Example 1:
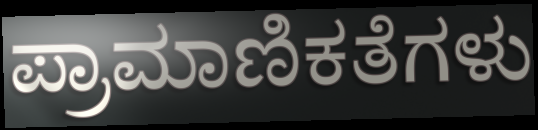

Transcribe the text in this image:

ಪ್ರಾಮಾಣಿಕತೆಗಳು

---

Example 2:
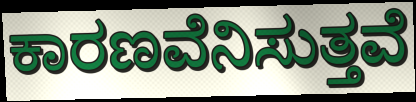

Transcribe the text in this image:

ಕಾರಣವೆನಿಸುತ್ತವೆ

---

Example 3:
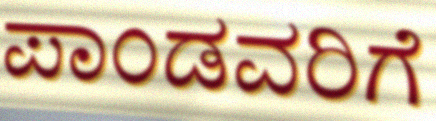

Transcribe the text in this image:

ಪಾಂಡವರಿಗೆ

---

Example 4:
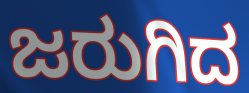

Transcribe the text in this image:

ಜರುಗಿದ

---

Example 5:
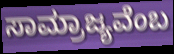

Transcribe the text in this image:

ಸಾಮ್ರಾಜ್ಯವೆಂಬ